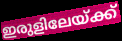
ഇരുളിലേയ്ക്ക്